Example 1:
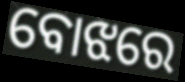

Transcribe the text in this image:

ବୋଝରେ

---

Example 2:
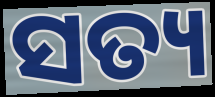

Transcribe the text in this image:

ସତ୍ୟ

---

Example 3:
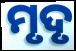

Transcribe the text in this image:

ମୃଦୃ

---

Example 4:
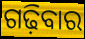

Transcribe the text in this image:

ଗଢ଼ିବାର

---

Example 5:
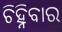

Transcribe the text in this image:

ଚିହ୍ନିବାର